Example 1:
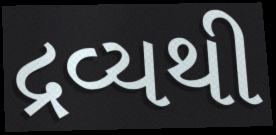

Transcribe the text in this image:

દ્રવ્યથી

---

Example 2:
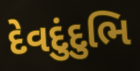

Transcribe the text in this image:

દેવદુંદુભિ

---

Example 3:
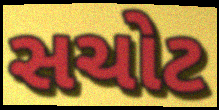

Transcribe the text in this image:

સચોટ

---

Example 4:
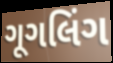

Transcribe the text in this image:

ગૂગલિંગ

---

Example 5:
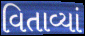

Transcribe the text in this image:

વિતાવ્યાં